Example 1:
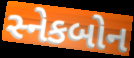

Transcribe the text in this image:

સ્નેકબોન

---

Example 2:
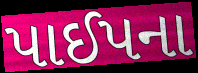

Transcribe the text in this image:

પાઈપના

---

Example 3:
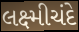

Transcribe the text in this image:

લક્ષ્મીચંદે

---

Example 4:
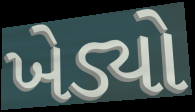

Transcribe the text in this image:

ખેડ્યો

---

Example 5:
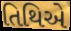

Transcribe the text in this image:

તિથિએ